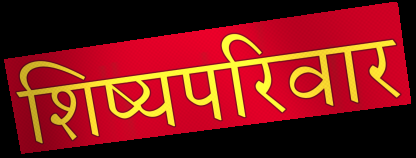
शिष्यपरिवार